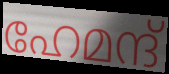
ഹേമന്ദ്